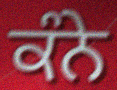
ਕੰਨੇ